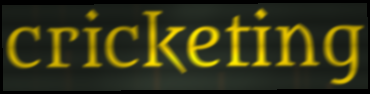
cricketing